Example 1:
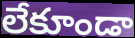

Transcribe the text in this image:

లేకూండా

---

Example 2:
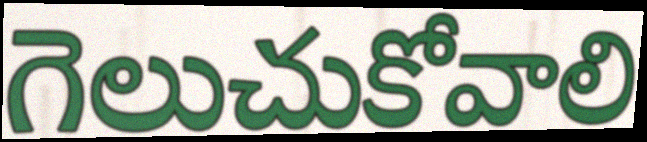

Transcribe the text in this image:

గెలుచుకోవాలి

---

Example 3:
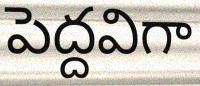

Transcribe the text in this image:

పెద్దవిగా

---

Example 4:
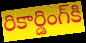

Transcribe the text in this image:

రికార్డింగ్‌కి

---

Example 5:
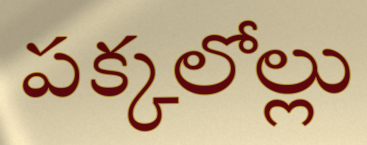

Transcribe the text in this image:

పక్కలోల్లు